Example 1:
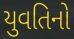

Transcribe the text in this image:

યુવતિનો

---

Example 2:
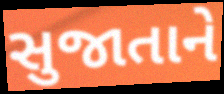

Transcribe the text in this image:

સુજાતાને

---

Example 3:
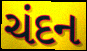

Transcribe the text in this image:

ચંદન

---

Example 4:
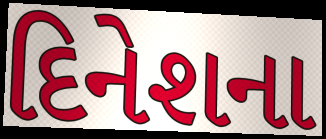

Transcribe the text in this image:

દિનેશના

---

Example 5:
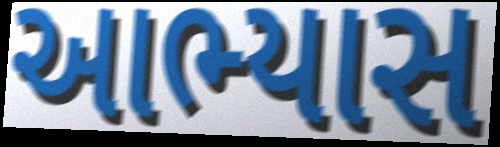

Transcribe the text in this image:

આભ્યાસ